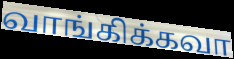
வாங்கிக்கவா